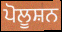
ਪੋਲੂਸ਼ਨ